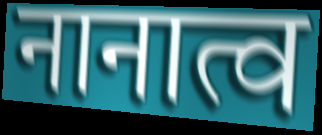
नानात्व